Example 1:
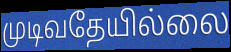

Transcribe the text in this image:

முடிவதேயில்லை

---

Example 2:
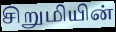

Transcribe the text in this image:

சிறுமியின்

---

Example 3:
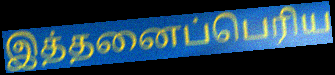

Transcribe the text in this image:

இத்தனைப்பெரிய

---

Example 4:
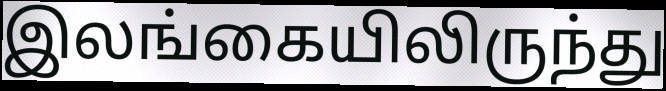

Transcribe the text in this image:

இலங்கையிலிருந்து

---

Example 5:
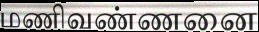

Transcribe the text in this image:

மணிவண்ணனை